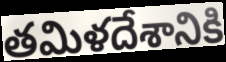
తమిళదేశానికి